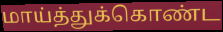
மாய்த்துக்கொண்ட